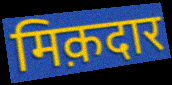
मिक़दार